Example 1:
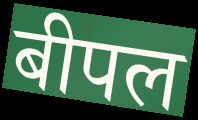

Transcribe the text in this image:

बीपल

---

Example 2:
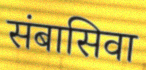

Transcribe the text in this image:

संबासिवा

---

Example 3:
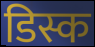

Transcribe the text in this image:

डिस्क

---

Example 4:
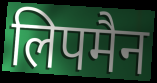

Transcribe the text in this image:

लिपमैन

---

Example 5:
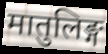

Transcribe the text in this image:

मातुलिङ्ग